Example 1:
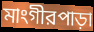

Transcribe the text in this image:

মাংগীরপাড়া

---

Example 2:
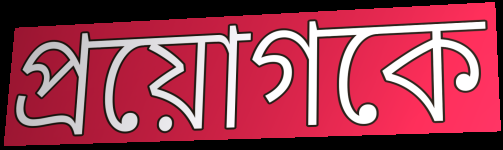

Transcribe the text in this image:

প্রয়োগকে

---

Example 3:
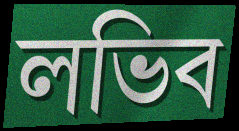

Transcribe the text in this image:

লভিব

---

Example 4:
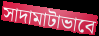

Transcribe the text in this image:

সাদামাটাভাবে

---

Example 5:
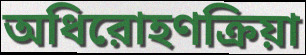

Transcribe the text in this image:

অধিরোহণক্রিয়া